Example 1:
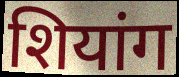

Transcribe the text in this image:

शियांग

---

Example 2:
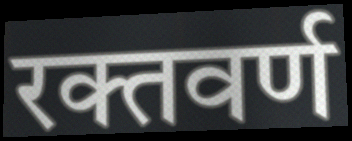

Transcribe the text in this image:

रक्तवर्ण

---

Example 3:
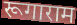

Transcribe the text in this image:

रूगाराम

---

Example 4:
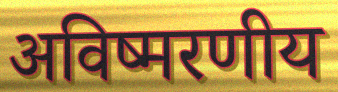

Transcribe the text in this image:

अविष्मरणीय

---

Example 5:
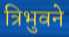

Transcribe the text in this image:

त्रिभुवने